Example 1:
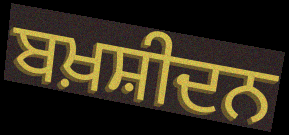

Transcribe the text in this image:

ਬਖ਼ਸ਼ੀਦਨ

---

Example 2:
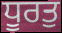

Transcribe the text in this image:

ਧੂਰਤੁ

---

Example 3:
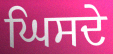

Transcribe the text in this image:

ਘਿਸਦੇ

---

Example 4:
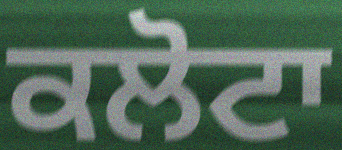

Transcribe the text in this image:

ਕਲੋਟਾ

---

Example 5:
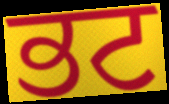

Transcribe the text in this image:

ਭਟ